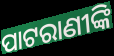
ପାଟରାଣୀଙ୍କି